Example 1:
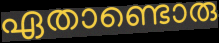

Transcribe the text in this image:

ഏതാണ്ടൊരു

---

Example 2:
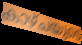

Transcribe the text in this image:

കാഴ്ചയുടെ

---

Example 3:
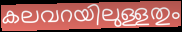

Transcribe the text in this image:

കലവറയിലുള്ളതും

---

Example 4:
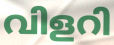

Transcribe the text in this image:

വിളറി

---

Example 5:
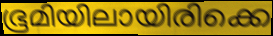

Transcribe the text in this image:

ഭൂമിയിലായിരിക്കെ